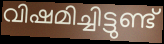
വിഷമിച്ചിട്ടുണ്ട്